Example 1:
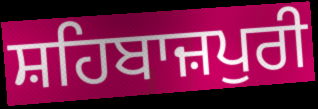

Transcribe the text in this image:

ਸ਼ਹਿਬਾਜ਼ਪੁਰੀ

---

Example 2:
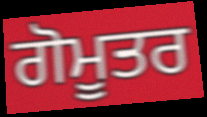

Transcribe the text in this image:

ਗੋਮੂਤਰ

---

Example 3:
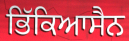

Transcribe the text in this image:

ਭਿੱਕਿਆਸੈਨ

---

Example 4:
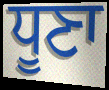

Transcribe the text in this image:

ਧੂਣਾ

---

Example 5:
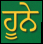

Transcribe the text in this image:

ਹੂਨੇ